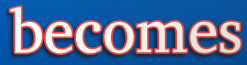
becomes